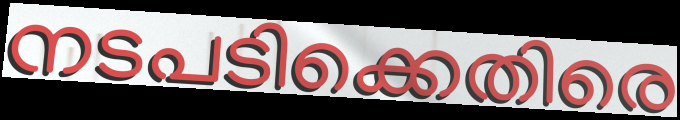
നടപടിക്കെതിരെ